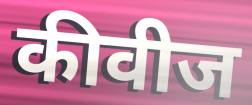
कीवीज